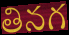
తినగ